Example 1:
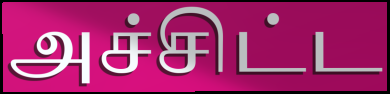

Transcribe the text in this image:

அச்சிட்ட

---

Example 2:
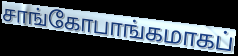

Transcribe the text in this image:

சாங்கோபாங்கமாகப்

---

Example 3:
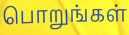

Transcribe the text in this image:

பொறுங்கள்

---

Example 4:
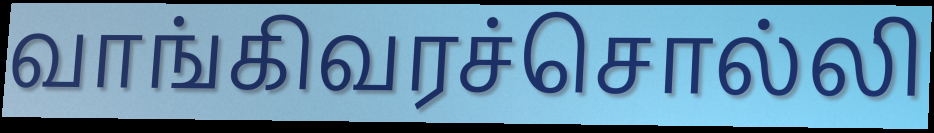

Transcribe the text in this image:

வாங்கிவரச்சொல்லி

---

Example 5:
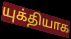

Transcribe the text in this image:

யுக்தியாக